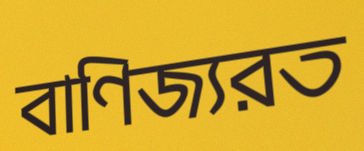
বাণিজ্যরত